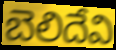
బెలిదేవి